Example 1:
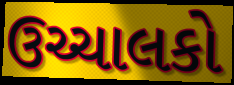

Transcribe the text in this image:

ઉચ્ચાલકો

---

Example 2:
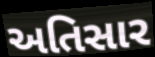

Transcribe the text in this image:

અતિસાર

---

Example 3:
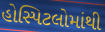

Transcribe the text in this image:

હોસ્પિટલોમાંથી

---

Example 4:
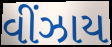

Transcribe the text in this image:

વીંઝાય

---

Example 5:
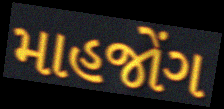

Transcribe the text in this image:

માહજોંગ